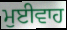
ਮੁਈਵਾਹ